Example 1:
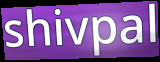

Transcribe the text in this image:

shivpal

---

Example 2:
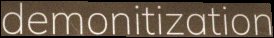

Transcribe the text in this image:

demonitization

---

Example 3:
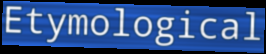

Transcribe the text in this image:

Etymological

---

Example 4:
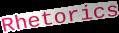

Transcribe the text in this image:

Rhetorics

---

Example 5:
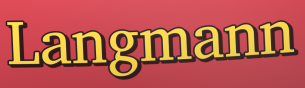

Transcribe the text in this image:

Langmann